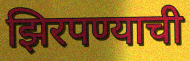
झिरपण्याची